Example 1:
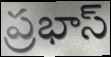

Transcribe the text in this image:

ప్రభాస్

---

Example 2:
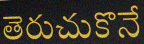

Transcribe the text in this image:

తెరుచుకొనే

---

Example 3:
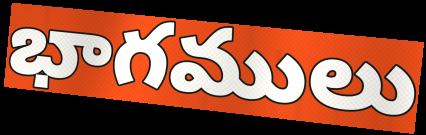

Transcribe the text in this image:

భాగములు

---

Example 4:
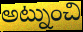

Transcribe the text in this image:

అట్నుంచి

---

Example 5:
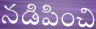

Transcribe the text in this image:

నడిపించి